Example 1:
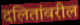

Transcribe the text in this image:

दलितांवरील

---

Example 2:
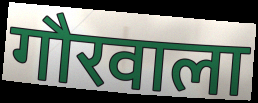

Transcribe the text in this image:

गौरवाला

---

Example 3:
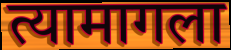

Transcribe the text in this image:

त्यामागला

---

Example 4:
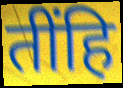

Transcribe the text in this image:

तींहि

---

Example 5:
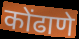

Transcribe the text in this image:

कोंढाणे